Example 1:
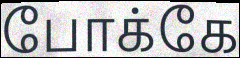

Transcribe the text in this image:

போக்கே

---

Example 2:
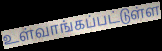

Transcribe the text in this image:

உள்வாங்கப்பட்டுள்ள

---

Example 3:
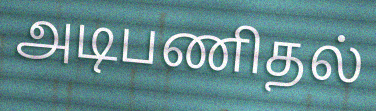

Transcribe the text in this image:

அடிபணிதல்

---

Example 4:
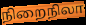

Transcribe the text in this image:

நிறைநிலா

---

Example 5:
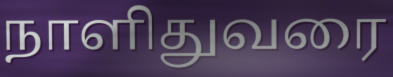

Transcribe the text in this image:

நாளிதுவரை